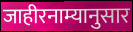
जाहीरनाम्यानुसार